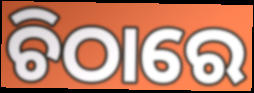
ଚିଠାରେ